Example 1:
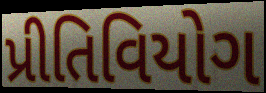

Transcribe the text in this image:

પ્રીતિવિયોગ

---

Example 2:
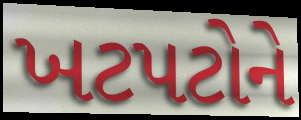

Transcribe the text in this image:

ખટપટોને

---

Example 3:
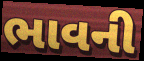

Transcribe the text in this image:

ભાવની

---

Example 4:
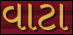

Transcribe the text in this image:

વાટા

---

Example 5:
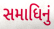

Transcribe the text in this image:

સમાધિનું